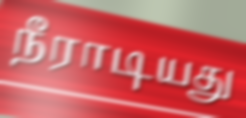
நீராடியது